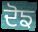
ਦੋਙ